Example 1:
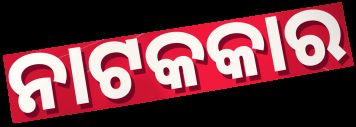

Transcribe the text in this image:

ନାଟକକାର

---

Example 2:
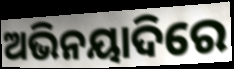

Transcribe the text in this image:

ଅଭିନୟାଦିରେ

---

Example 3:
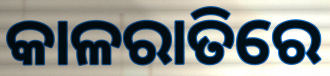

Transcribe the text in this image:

କାଳରାତିରେ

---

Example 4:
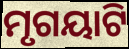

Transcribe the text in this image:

ମୃଗୟାଟି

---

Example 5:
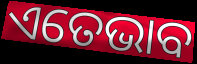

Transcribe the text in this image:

ଏତେଭାବ